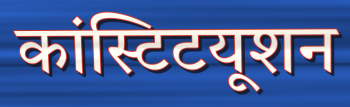
कांस्टिटयूशन